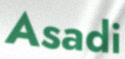
Asadi